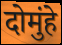
दोमुंहे